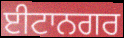
ਈਟਾਨਗਰ